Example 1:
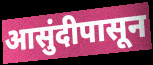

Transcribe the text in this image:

आसुंदीपासून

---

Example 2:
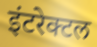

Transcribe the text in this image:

इंटरेक्टल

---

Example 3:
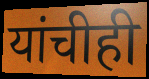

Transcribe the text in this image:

यांचीही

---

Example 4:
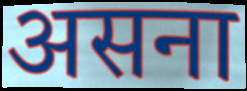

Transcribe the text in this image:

असना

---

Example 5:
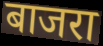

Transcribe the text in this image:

बाजरा